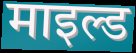
माइल्ड